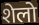
शेलो